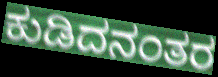
ಕುಡಿದನಂತರ